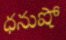
ధనుషో